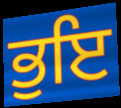
ਭੁਇ